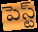
పెస్ట్